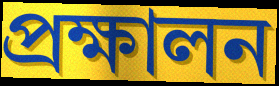
প্রক্ষালন